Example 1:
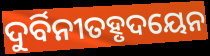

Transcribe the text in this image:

ଦୁର୍ବିନୀତହୃଦୟେନ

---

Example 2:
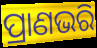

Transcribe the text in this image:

ପ୍ରାଣଭରି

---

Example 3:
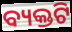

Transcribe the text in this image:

ବ୍ୟକ୍ତଟି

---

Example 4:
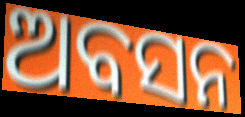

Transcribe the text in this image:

ଅବସନ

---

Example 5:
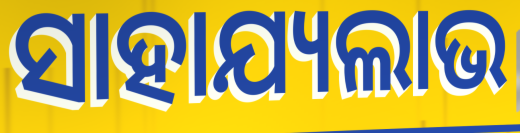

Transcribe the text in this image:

ସାହାଯ୍ୟଲାଭ